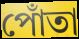
পোঁতা